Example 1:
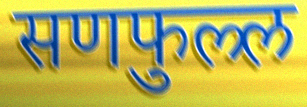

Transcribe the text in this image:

सणफुल्ल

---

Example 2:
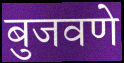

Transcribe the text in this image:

बुजवणे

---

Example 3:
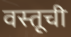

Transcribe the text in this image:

वस्तूची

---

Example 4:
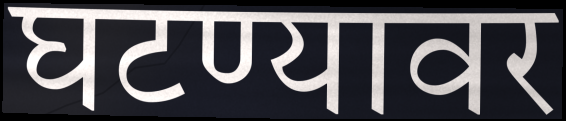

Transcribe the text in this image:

घटण्यावर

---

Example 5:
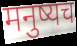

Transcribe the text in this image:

मनुष्यच